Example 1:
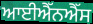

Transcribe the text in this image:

ਆਈਐੱਨਐੱਸ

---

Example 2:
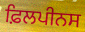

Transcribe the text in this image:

ਫ਼ਿਲਪੀਨਸ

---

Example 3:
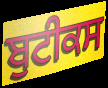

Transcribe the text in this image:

ਬੁਟੀਕਸ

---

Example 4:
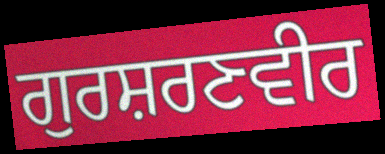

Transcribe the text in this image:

ਗੁਰਸ਼ਰਣਵੀਰ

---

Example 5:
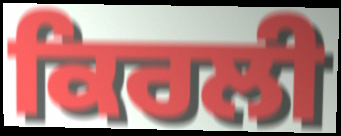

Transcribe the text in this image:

ਕਿਰਲੀ